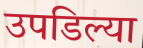
उपडिल्या